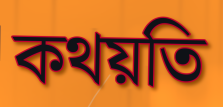
কথয়তি